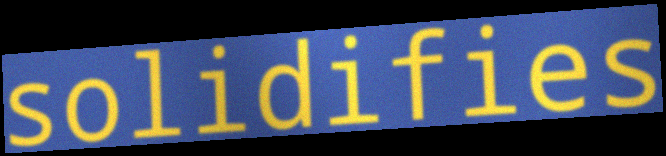
solidifies